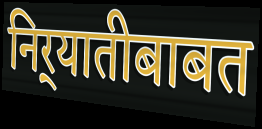
निर्यातीबाबत